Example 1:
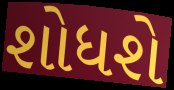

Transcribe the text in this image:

શોધશે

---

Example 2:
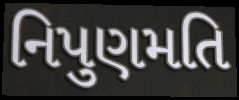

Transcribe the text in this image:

નિપુણમતિ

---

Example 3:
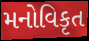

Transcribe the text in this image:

મનોવિકૃત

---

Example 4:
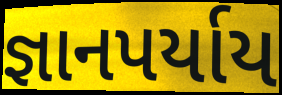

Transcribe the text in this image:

જ્ઞાનપર્યાય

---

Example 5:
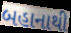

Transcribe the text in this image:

બહાનાથી